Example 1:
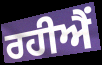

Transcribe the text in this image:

ਰਹੀਐਂ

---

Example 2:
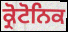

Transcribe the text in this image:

ਕ੍ਰੋਟੋਨਿਕ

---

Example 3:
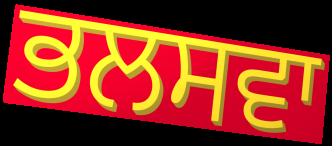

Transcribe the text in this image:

ਭਲਸਵਾ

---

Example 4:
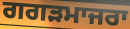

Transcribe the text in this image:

ਗਗੜਮਾਜਰਾ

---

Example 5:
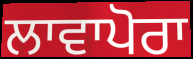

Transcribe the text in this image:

ਲਾਵਾਪੋਰਾ